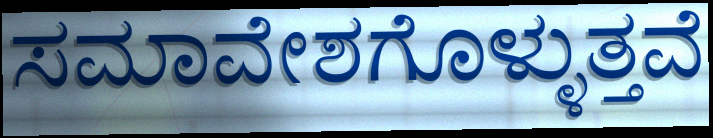
ಸಮಾವೇಶಗೊಳ್ಳುತ್ತವೆ